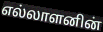
எல்லாளனின்